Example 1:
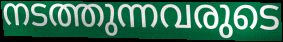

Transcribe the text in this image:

നടത്തുന്നവരുടെ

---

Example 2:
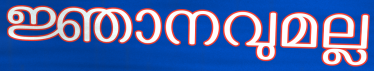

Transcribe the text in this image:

ജ്ഞാനവുമല്ല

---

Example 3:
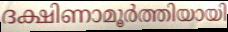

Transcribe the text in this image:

ദക്ഷിണാമൂർത്തിയായി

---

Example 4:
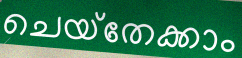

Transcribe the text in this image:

ചെയ്‌തേക്കാം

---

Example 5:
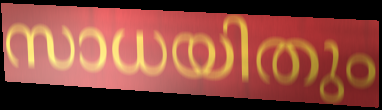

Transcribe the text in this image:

സാധയിതും